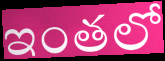
ఇంతలో